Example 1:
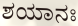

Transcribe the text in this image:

ಶಯಾನಃ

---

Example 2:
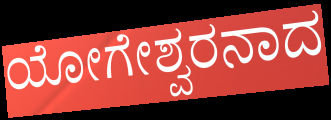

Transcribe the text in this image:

ಯೋಗೇಶ್ವರನಾದ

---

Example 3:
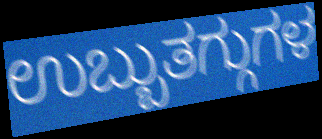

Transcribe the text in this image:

ಉಬ್ಬುತಗ್ಗುಗಳ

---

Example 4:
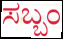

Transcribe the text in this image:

ಸಬ್ಬಂ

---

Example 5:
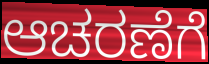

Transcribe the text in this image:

ಆಚರಣೆಗೆ